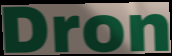
Dron